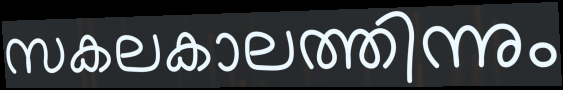
സകലകാലത്തിന്നും